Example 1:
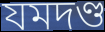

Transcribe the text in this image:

যমদণ্ড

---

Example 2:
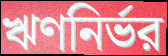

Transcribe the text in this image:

ঋণনির্ভর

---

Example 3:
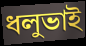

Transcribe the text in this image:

ধলুভাই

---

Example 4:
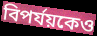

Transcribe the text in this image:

বিপর্যয়কেও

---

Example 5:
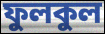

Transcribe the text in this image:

ফুলকুল